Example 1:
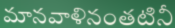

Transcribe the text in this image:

మానవాళినంతటినీ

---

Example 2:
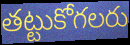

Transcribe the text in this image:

తట్టుకోగలరు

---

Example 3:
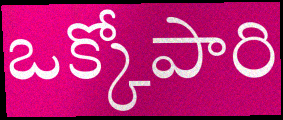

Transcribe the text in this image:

ఒక్కోపారి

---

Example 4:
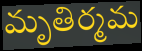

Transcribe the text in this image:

మృతిర్మమ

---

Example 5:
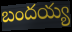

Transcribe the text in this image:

బందయ్య